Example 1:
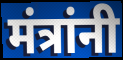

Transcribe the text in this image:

मंत्रांनी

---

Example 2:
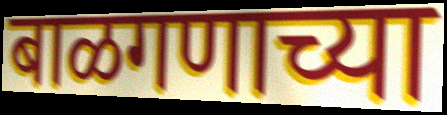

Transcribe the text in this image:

बाळगणाच्या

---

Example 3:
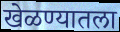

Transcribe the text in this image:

खेळण्यातला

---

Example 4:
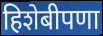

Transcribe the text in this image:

हिशेबीपणा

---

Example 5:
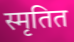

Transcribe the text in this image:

स्मृतित